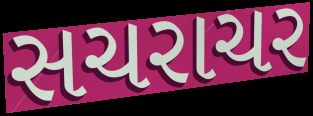
સચરાચર